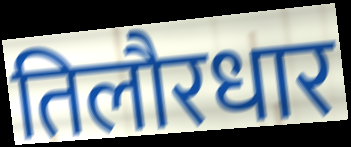
तिलौरधार